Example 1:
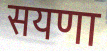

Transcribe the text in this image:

सयणा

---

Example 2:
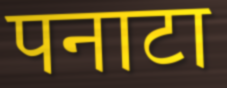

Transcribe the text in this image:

पनाटा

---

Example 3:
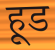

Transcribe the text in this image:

हूड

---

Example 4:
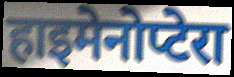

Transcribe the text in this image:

हाइमेनोप्टेरा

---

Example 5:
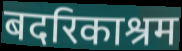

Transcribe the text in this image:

बदरिकाश्रम